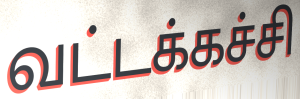
வட்டக்கச்சி